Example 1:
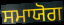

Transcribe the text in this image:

ਸਮਾਯੋਗ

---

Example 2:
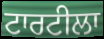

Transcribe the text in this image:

ਟਾਰਟੀਲਾ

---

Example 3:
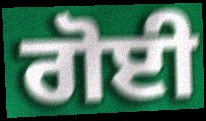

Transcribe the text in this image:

ਗੋਈ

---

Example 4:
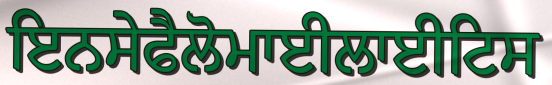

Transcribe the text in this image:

ਇਨਸੇਫੈਲੋਮਾਈਲਾਈਟਿਸ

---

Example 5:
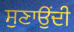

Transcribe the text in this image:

ਸੁਣਾਉਂਦੀ